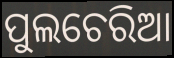
ପୁଲଚେରିଆ